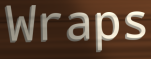
Wraps